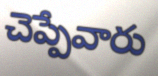
చెప్పేవారు